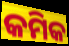
କମିକ